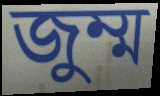
জুম্ম